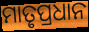
ମାତୃପ୍ରଧାନ